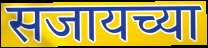
सजायच्या